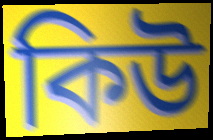
কিউ